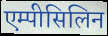
एम्पीसिलिन